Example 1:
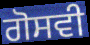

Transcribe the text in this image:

ਗੋਸਵੀ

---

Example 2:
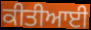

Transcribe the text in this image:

ਕੀਤੀਆਈ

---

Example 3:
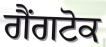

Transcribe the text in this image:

ਗੈਂਗਟੋਕ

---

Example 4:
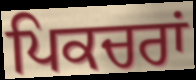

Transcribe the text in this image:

ਪਿਕਚਰਾਂ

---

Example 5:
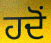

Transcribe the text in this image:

ਹਦੋਂ